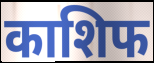
काशिफ